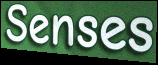
Senses